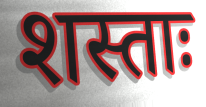
शस्ताः